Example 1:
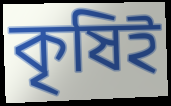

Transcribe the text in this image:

কৃষিই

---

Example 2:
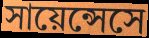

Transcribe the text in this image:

সায়েন্সেসে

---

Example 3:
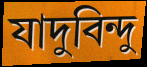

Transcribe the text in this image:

যাদুবিন্দু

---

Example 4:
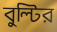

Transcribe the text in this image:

বুল্টির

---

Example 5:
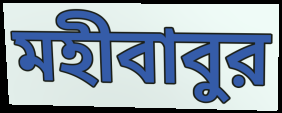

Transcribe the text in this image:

মহীবাবুর